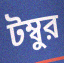
টম্বুর